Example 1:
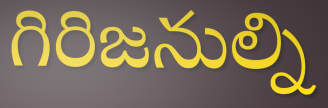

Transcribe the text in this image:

గిరిజనుల్ని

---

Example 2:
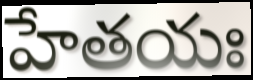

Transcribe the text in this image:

హేతయః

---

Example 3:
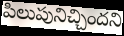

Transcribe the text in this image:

పిలుపునిచ్చిందని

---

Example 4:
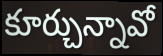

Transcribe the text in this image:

కూర్చున్నావో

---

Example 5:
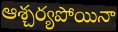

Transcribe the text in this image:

ఆశ్చర్యపోయినా